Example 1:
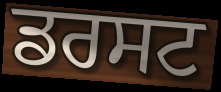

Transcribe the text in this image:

ਡਰਸਟ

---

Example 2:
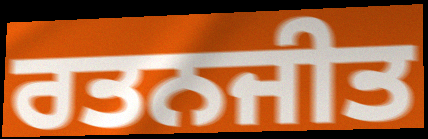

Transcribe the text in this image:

ਰਤਨਜੀਤ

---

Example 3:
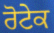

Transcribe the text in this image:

ਰੋਟੇਕ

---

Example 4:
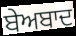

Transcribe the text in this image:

ਬੇਅਬਾਦ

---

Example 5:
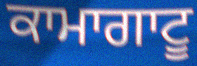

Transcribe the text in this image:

ਕਾਮਾਗਾਟੂ